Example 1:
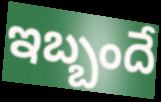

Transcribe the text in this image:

ఇబ్బందే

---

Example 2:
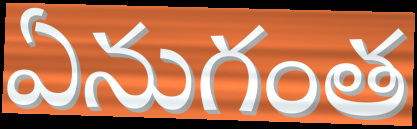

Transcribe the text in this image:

ఏనుగంత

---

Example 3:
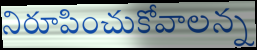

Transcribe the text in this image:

నిరూపించుకోవాలన్న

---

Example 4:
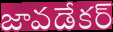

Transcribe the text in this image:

జావడేకర్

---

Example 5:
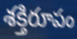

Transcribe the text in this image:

శక్తిరూపం